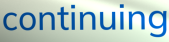
continuing